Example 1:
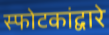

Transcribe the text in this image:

स्फोटकांद्वारे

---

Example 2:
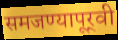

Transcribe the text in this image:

समजण्यापूर्वी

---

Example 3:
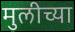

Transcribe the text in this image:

मुलीच्‍या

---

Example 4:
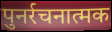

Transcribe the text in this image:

पुनर्रचनात्मक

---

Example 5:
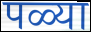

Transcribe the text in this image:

पळ्या